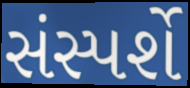
સંસ્પર્શે